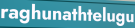
raghunathtelugu